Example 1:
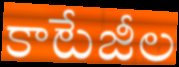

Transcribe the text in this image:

కాటేజీల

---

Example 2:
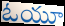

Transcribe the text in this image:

ఓయూ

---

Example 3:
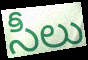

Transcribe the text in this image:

సీలు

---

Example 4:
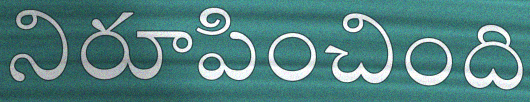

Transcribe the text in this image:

నిరూపించింది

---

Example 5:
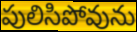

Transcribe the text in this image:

పులిసిపోవును